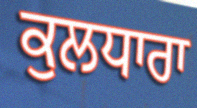
ਕੁਲਧਾਰਾ